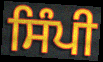
ਸਿੰਪੀ